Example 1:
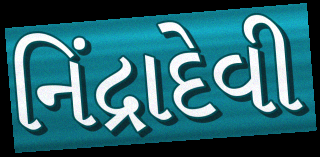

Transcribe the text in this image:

નિંદ્રાદેવી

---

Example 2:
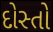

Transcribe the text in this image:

દોસ્તો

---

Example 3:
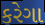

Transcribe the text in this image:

કરેગા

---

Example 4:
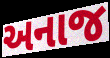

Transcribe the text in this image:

અનાજ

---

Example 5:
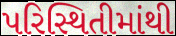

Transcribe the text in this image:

પરિસ્થિતીમાંથી